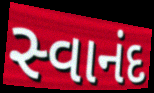
સ્વાનંદ